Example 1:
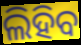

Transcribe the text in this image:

ଲିହିବ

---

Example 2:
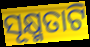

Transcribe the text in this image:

ସୂକ୍ଷ୍ମତାଟି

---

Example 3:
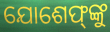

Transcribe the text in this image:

ଯୋଶେଫ୍‌ଙ୍କୁ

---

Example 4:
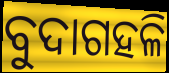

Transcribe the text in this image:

ବୁଦାଗହଳି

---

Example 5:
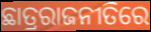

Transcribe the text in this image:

ଛାତ୍ରରାଜନୀତିରେ